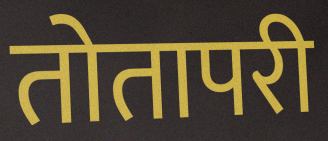
तोतापरी